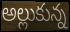
అల్లుకున్న